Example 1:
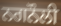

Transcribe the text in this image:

ਨਗਨੌਲੀ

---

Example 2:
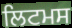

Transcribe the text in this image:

ਲਿਟਮਸ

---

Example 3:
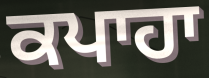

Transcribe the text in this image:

ਕਪਾਹਾ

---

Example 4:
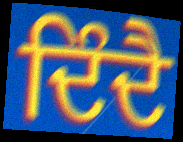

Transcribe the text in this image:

ਦਿੰਦੈ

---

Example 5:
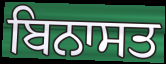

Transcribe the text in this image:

ਬਿਨਾਸਤ